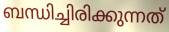
ബന്ധിച്ചിരിക്കുന്നത്